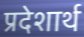
प्रदेशार्थ